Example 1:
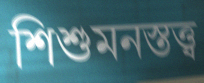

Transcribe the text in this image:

শিশুমনস্তত্ত্ব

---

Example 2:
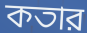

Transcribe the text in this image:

কতার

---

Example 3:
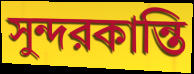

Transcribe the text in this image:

সুন্দরকান্তি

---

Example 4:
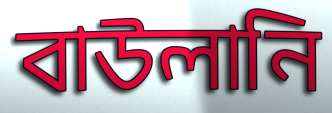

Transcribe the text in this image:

বাউলানি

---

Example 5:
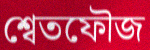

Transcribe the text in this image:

শ্বেতফৌজ